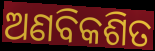
ଅଣବିକଶିତ